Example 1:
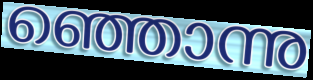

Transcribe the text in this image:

ഞ്ഞൊന്നു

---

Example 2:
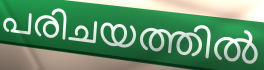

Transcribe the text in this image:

പരിചയത്തിൽ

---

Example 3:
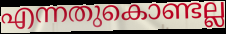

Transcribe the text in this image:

എന്നതുകൊണ്ടല്ല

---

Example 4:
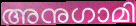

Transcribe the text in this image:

അനുഗാമി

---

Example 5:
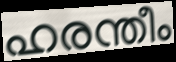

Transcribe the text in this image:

ഹരന്തീം